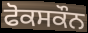
ਫੋਕਸਕੌਨ